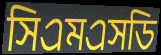
সিএমএসডি